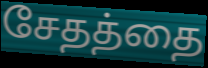
சேதத்தை